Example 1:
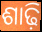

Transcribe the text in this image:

ଶାଢ଼ି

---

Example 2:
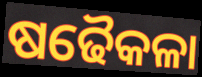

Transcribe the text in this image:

ଷଢୈକଳା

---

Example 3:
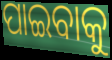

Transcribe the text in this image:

ପାଇବାକୁ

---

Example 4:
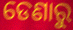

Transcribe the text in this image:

ଡେଣାରୁ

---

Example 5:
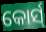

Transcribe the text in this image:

କୋର୍ସ୍